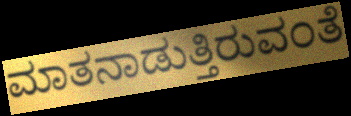
ಮಾತನಾಡುತ್ತಿರುವಂತೆ